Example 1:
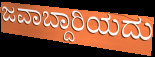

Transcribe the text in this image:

ಜವಾಬ್ದಾರಿಯದು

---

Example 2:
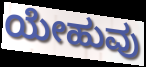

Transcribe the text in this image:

ಯೇಹುವು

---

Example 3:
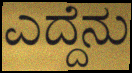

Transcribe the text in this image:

ಎದ್ದೆನು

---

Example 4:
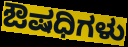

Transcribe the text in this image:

ಔಷಧಿಗಳು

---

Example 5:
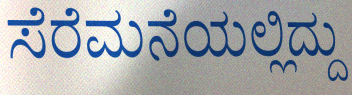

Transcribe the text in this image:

ಸೆರೆಮನೆಯಲ್ಲಿದ್ದು